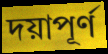
দয়াপূর্ণ